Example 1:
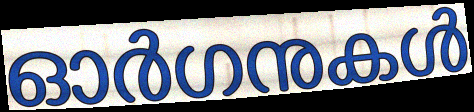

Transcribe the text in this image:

ഓർഗനുകൾ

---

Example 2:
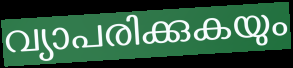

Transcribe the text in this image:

വ്യാപരിക്കുകയും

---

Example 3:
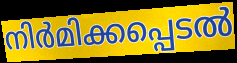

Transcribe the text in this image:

നിർമിക്കപ്പെടൽ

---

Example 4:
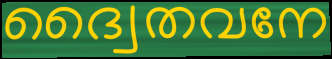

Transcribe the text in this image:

ദ്വൈതവനേ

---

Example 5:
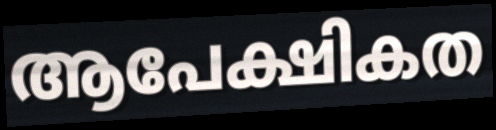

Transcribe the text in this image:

ആപേക്ഷികത